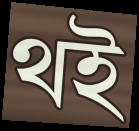
থই